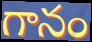
గానం